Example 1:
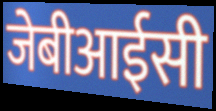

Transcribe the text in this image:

जेबीआईसी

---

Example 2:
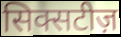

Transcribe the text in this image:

सिक्सटीज़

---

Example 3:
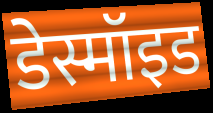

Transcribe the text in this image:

डेस्मॉइड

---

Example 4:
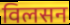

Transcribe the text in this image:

विलसन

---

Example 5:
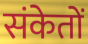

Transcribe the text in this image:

संकेतों